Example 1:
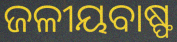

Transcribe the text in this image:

ଜଳୀୟବାଷ୍ଫ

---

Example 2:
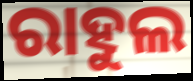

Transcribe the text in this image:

ରାହୁଲ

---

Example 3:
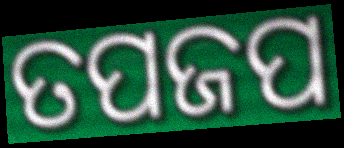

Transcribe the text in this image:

ତପଜପ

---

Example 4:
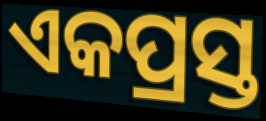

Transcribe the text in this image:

ଏକପ୍ରସ୍ତ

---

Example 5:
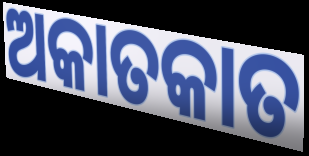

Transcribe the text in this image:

ଅକାତକାତ